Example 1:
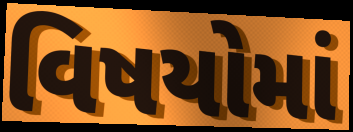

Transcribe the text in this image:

વિષયોમાં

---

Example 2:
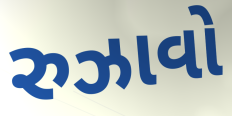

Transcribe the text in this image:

રુઝાવો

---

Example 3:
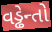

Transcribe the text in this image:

વડ્ઢેન્તો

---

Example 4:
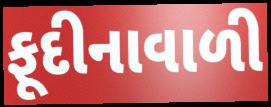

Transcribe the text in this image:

ફૂદીનાવાળી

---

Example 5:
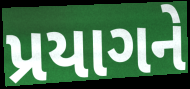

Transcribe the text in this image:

પ્રયાગને